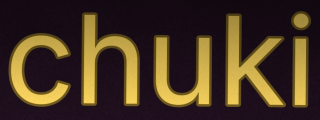
chuki